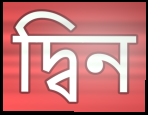
দ্বিন